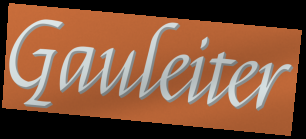
Gauleiter